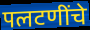
पलटणींचे